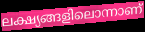
ലക്ഷ്യങ്ങളിലൊന്നാണ്